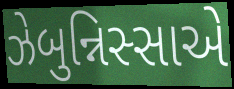
ઝેબુન્નિસ્સાએ